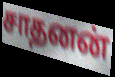
சாதனன்